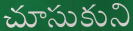
చూసుకుని